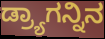
ಡ್ರ್ಯಾಗನ್ನಿನ